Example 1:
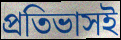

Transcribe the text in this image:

প্রতিভাসই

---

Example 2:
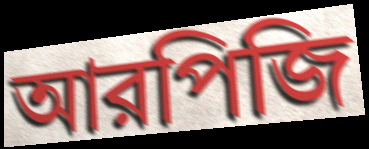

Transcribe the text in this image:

আরপিজি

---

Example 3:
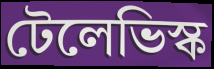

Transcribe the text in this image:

টেলেভিস্ক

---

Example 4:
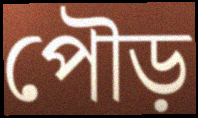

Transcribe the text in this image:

পৌড়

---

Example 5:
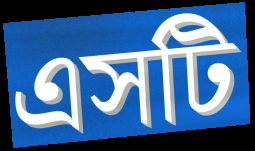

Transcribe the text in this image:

এসটি